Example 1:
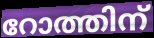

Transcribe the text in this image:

റോത്തിന്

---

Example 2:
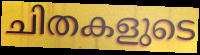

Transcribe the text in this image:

ചിതകളുടെ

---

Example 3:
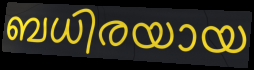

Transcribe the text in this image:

ബധിരയായ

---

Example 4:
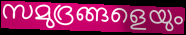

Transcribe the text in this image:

സമുദ്രങ്ങളെയും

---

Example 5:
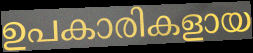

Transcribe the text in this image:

ഉപകാരികളായ